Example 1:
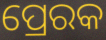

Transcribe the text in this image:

ପ୍ରେରକ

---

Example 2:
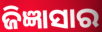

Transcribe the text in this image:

ଜିଜ୍ଞାସାର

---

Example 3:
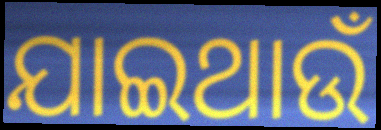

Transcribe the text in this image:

ଯାଇଥାଉଁ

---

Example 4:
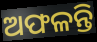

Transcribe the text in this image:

ଅଫଳନ୍ତି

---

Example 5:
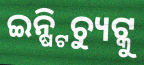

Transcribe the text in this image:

ଇନ୍ଷ୍ଟିଚ୍ୟୁଟ୍କୁ